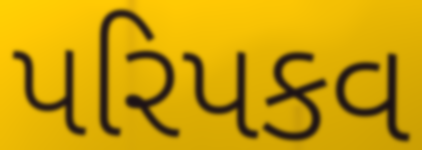
પરિપકવ